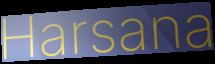
Harsana